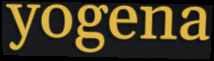
yogena